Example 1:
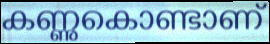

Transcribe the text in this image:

കണ്ണുകൊണ്ടാണ്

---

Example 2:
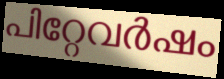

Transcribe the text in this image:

പിറ്റേവർഷം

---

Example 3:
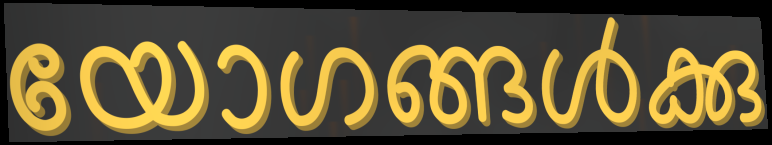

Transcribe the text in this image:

യോഗങ്ങൾക്കു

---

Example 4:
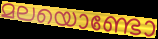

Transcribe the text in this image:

മലയൊണ്ടോ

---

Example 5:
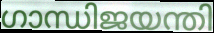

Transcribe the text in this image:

ഗാന്ധിജയന്തി